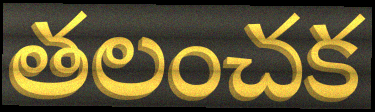
తలంచక